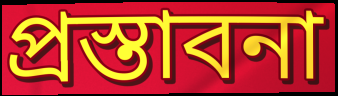
প্রস্তাবনা